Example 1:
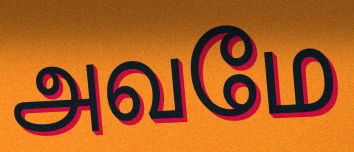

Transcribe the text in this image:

அவமே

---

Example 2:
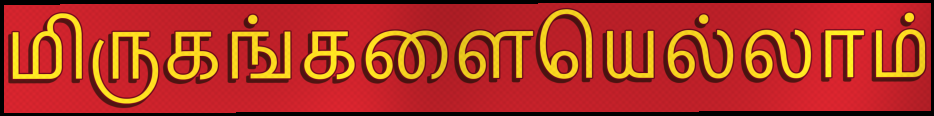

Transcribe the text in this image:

மிருகங்களையெல்லாம்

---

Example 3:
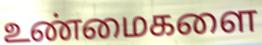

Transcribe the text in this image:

உண்மைகளை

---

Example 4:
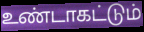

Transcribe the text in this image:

உண்டாகட்டும்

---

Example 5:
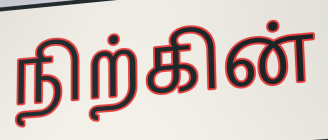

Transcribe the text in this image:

நிற்கின்